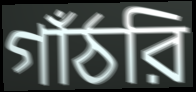
গাঁঠরি